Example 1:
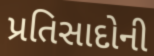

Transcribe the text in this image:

પ્રતિસાદોની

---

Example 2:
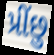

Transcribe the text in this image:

પ્રીંછુ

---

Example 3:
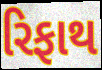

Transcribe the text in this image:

રિફાથ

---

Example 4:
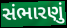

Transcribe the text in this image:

સંભારણું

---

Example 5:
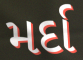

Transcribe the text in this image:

મર્દા